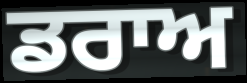
ਡਰਾਅ